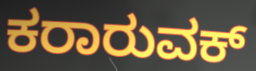
ಕರಾರುವಕ್